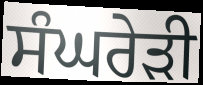
ਸੰਘਰੇੜੀ